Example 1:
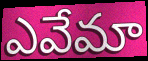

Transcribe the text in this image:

ఎవేమా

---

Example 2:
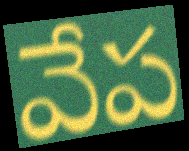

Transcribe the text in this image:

వేప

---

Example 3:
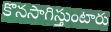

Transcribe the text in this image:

కొనసాగిస్తుంటారు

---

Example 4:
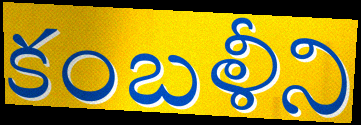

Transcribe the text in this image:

కంబళీని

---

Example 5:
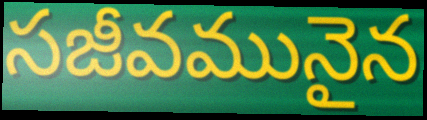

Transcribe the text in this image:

సజీవమునైన